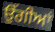
ਉੱਗੀਆਂ